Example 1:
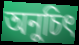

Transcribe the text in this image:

অনুচিৎ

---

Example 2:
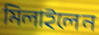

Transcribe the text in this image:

মিলাইলেন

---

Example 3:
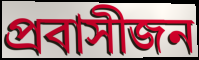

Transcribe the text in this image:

প্রবাসীজন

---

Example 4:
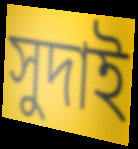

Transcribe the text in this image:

সুদাই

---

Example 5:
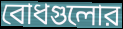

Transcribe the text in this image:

বোধগুলোর